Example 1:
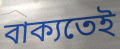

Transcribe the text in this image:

বাক্যতেই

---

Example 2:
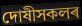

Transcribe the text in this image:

দোষীসকলৰ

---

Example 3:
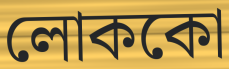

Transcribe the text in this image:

লোককো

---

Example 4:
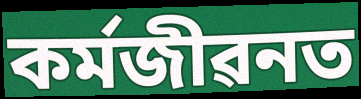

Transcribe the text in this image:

কৰ্মজীৱনত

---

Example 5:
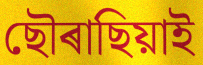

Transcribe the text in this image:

ছৌৰাছিয়াই